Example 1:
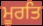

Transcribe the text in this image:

ਮੂਰਤਿ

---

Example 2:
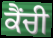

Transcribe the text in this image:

ਕੈਂਚੀ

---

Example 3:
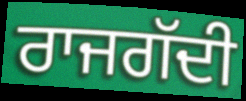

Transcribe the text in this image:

ਰਾਜਗੱਦੀ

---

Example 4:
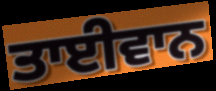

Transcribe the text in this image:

ਤਾਈਵਾਨ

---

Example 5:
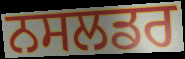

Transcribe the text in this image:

ਨਸਲਡਰ